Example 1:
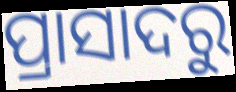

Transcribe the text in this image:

ପ୍ରାସାଦରୁ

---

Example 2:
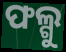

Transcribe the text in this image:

ଫଲ୍ଗୁ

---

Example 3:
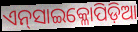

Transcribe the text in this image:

ଏନ୍‌ସାଇକ୍ଳୋପିଡ଼ିଆ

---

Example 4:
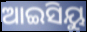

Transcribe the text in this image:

ଆଇସିୟୁ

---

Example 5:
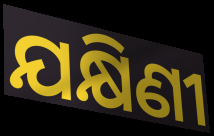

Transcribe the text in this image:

ଯକ୍ଷିଣୀ